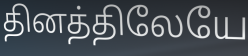
தினத்திலேயே